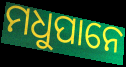
ମଧୁପାନେ